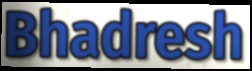
Bhadresh